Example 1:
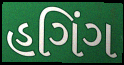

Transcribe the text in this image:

હગિંગ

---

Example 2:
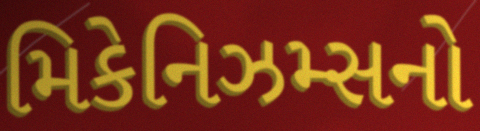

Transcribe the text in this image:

મિકેનિઝમ્સનો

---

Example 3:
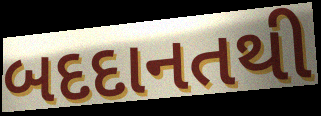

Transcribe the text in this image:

બદદાનતથી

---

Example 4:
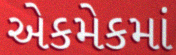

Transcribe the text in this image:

એકમેકમાં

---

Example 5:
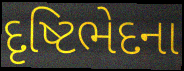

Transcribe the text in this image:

દૃષ્ટિભેદના